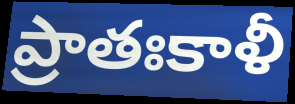
ప్రాతఃకాళీ